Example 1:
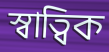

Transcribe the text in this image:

স্বাত্বিক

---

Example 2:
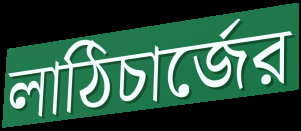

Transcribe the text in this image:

লাঠিচার্জের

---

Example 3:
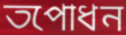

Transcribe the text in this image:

তপোধন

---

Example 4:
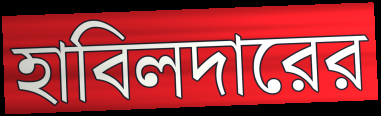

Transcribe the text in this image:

হাবিলদারের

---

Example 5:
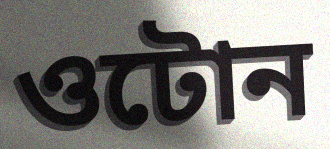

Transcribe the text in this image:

ওটোন